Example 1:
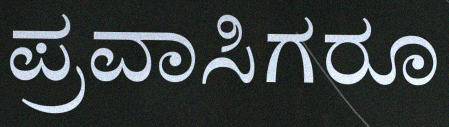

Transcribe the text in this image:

ಪ್ರವಾಸಿಗರೂ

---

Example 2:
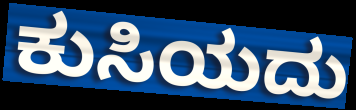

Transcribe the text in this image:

ಕುಸಿಯದು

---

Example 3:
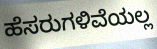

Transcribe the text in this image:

ಹೆಸರುಗಳಿವೆಯಲ್ಲ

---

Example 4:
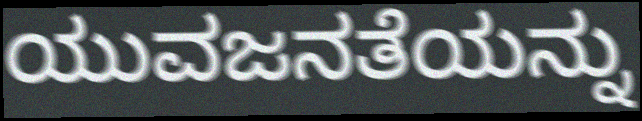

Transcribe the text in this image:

ಯುವಜನತೆಯನ್ನು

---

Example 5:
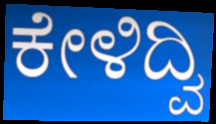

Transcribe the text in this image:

ಕೇಳಿದ್ವಿ